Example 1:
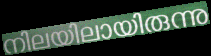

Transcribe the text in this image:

നിലയിലായിരുന്നു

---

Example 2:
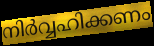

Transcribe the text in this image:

നിർവ്വഹിക്കണം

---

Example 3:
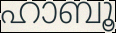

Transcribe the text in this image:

ഹാബൂ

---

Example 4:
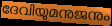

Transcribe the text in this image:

ദേവിയുമനുജനും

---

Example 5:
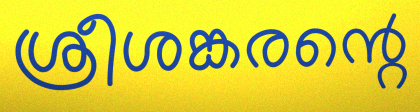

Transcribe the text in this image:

ശ്രീശങ്കരന്റെ